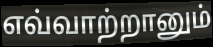
எவ்வாற்றானும்